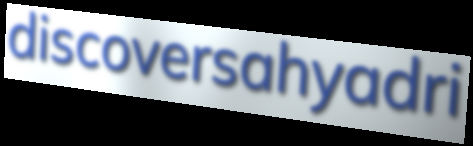
discoversahyadri